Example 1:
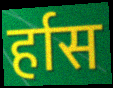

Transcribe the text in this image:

र्हास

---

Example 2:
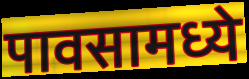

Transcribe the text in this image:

पावसामध्ये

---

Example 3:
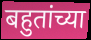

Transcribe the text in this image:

बहुतांच्या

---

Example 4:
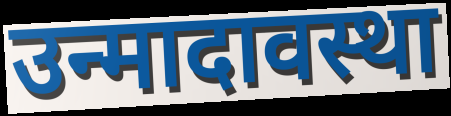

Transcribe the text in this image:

उन्मादावस्था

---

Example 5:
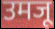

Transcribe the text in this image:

उमजू